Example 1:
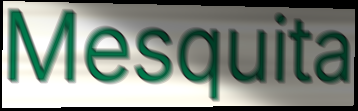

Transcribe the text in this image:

Mesquita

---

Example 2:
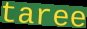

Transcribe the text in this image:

taree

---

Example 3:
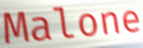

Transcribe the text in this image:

Malone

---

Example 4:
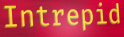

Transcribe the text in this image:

Intrepid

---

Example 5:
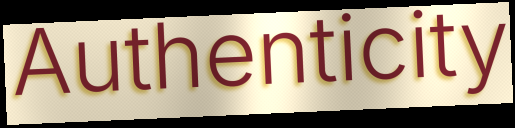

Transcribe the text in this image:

Authenticity